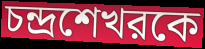
চন্দ্রশেখরকে